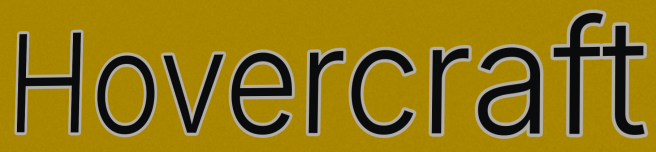
Hovercraft